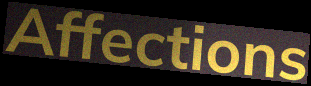
Affections